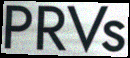
PRVs